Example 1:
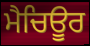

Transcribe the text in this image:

ਮੈਚਿਊਰ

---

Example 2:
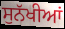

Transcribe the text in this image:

ਸੁਨੱਖੀਆਂ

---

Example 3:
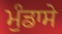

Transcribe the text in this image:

ਮੁੰਡਾਸੇ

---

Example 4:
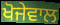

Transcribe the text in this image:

ਖੋਜੇਵਾਲ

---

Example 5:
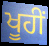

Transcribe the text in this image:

ਖੂਹੀਂ